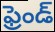
ఫ్రెండ్